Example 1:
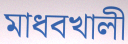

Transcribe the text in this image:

মাধবখালী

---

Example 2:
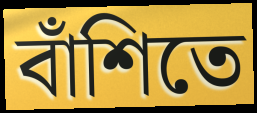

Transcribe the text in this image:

বাঁশিতে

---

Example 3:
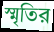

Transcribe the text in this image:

স্মৃতির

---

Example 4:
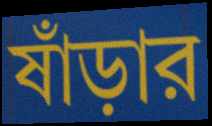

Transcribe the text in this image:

ষাঁড়ার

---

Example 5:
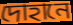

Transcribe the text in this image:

দোহানে